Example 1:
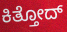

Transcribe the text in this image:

ಕಿತ್ತೋದ್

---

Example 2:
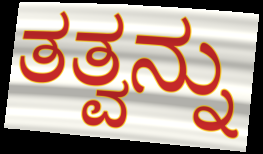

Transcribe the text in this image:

ತತ್ವನ್ನು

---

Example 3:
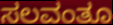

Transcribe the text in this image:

ಸಲವಂತೂ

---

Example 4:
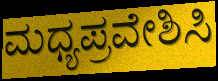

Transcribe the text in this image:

ಮಧ್ಯಪ್ರವೇಶಿಸಿ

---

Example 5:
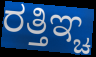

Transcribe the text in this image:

ರತ್ತಿಞ್ಚ